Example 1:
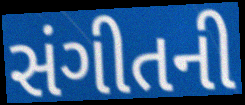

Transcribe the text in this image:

સંગીતની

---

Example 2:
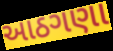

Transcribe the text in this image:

આઠગણા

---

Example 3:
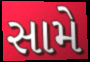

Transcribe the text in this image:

સામે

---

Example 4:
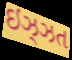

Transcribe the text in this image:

ઇઝ્ઝત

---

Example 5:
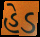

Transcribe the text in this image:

હેડ